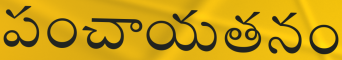
పంచాయతనం